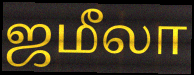
ஜமீலா